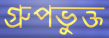
গ্রুপভুক্ত